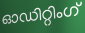
ഓഡിറ്റിംഗ്